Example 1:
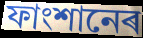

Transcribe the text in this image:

ফাংশানেৰ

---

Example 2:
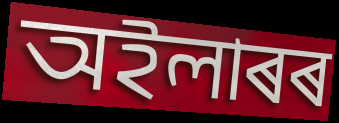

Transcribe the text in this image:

অইলাৰৰ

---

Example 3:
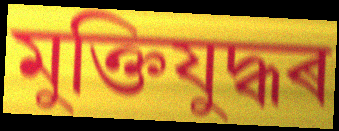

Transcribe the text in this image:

মুক্তিযুদ্ধৰ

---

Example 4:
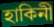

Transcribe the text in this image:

হাকিনী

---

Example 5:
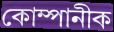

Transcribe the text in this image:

কোম্পানীক